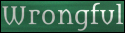
Wrongful